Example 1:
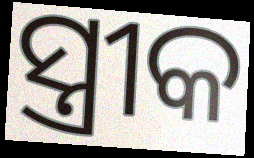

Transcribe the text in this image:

ସ୍ତ୍ରୀକ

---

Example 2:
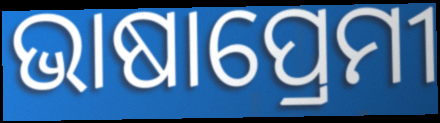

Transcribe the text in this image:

ଭାଷାପ୍ରେମୀ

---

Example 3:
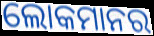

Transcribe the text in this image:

ଲୋକମାନର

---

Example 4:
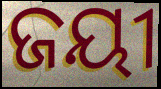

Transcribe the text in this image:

ଜୟୀ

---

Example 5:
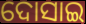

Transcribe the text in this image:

ଦୋସାଇ